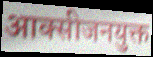
आक्सीजनयुक्त